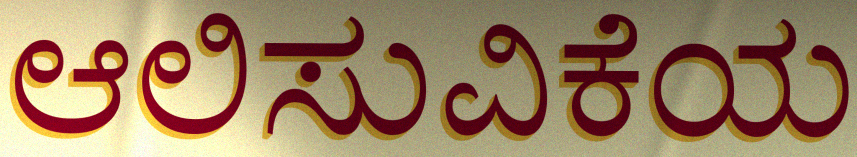
ಆಲಿಸುವಿಕೆಯ